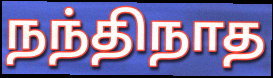
நந்திநாத